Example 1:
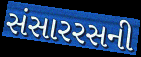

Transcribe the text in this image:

સંસારરસની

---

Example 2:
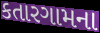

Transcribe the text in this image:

કતારગામના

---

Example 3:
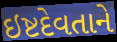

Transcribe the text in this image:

ઇષ્ટદેવતાને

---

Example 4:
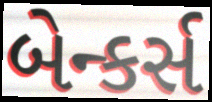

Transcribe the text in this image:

બેન્કર્સ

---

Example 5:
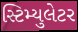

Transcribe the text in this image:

સ્ટિમ્યુલેટર